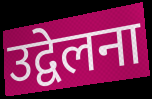
उद्वेलना